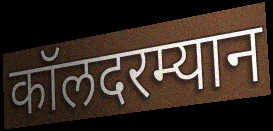
कॉलदरम्यान